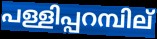
പള്ളിപ്പറമ്പില്